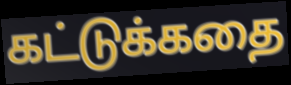
கட்டுக்கதை